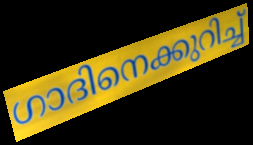
ഗാദിനെക്കുറിച്ച്